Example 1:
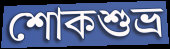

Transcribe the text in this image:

শোকশুভ্র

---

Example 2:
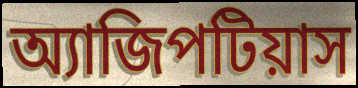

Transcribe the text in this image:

অ্যাজিপটিয়াস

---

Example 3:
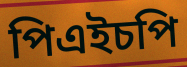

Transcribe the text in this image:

পিএইচপি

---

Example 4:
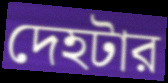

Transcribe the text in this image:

দেহটার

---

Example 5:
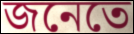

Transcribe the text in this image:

জনেতে